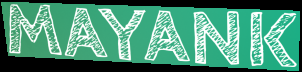
MAYANK